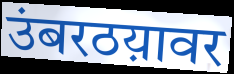
उंबरठय़ावर